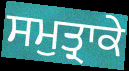
ਸਮੁਤ੍ਰਾਕੇ